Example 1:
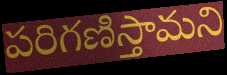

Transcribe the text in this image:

పరిగణిస్తామని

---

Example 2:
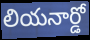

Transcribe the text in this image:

లియనార్డో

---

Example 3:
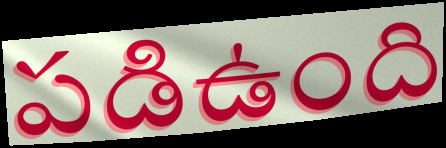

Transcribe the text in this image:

పడిఉంది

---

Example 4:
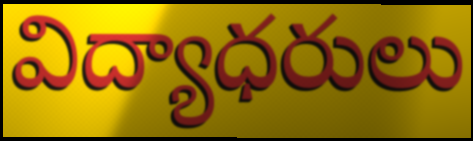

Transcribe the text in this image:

విద్యాధరులు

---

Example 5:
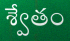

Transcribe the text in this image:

శ్వేతం